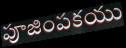
పూజింపకయు